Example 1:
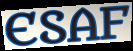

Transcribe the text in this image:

ESAF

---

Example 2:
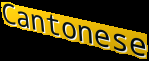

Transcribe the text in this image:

Cantonese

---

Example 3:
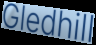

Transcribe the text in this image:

Gledhill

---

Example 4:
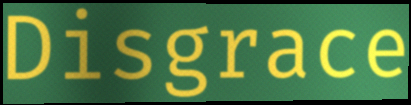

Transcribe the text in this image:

Disgrace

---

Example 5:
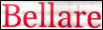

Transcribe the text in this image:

Bellare